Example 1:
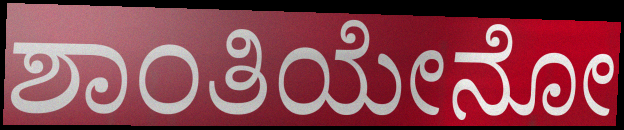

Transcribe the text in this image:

ಶಾಂತಿಯೇನೋ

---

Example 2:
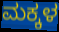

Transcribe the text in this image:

ಮಕ್ಕಳ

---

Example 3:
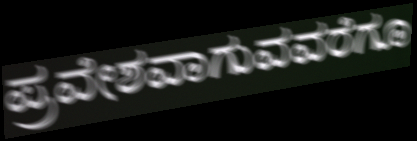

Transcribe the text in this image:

ಪ್ರವೇಶವಾಗುವವರೆಗೂ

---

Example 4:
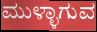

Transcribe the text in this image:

ಮುಳ್ಳಾಗುವ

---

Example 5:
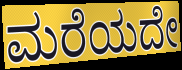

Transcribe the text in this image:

ಮರೆಯದೇ